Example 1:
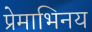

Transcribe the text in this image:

प्रेमाभिनय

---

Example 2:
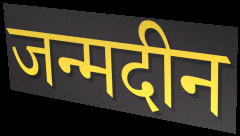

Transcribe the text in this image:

जन्मदीन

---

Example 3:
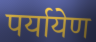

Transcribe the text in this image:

पर्यायेण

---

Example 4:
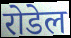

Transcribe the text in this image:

रोडेल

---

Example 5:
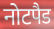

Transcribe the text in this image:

नोटपैड